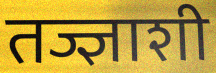
तज्ज्ञाशी